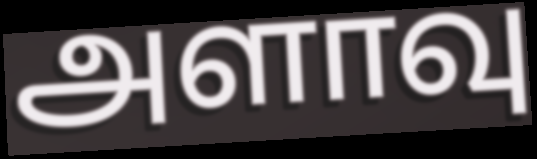
அளாவு